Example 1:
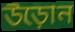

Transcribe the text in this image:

উড়োন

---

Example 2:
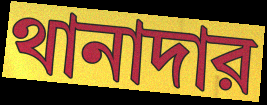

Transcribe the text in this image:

থানাদার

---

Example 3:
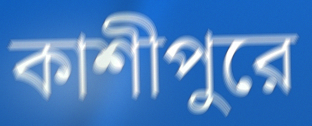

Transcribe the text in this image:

কাশীপুরে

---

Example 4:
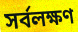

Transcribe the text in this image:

সর্বলক্ষণ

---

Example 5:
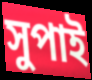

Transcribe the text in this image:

সুপাই